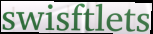
swisftlets